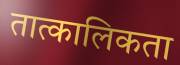
तात्कालिकता